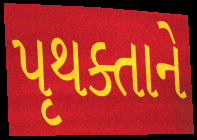
પૃથક્તાને